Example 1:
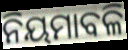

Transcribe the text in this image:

ନିୟମାବଳି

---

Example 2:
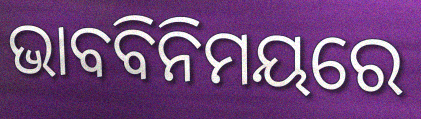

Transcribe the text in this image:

ଭାବବିନିମୟରେ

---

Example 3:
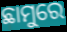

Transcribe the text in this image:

ଛାମୁରେ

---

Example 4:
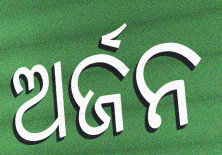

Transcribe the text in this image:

ଅର୍ଜନ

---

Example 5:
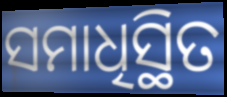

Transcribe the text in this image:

ସମାଧିସ୍ଥିତ